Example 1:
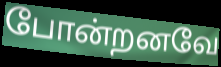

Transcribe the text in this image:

போன்றனவே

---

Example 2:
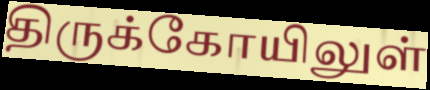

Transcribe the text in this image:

திருக்கோயிலுள்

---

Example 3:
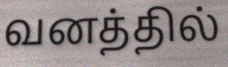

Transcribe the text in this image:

வனத்தில்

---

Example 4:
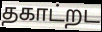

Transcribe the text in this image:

தகாட்றட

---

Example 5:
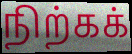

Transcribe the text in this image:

நிற்கக்